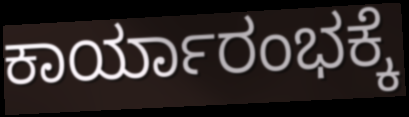
ಕಾರ್ಯಾರಂಭಕ್ಕೆ